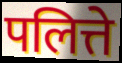
पलित्ते